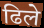
ढिले